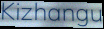
Kizhangu